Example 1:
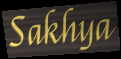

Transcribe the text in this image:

Sakhya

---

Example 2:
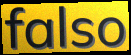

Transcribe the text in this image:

falso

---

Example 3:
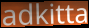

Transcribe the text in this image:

adkitta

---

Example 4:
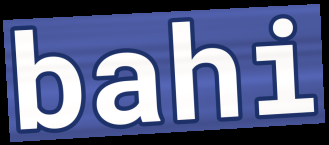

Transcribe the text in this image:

bahi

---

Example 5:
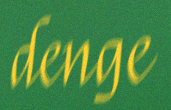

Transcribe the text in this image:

denge